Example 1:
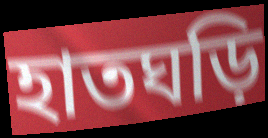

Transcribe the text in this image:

হাতঘড়ি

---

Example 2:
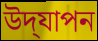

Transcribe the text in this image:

উদ্‌যাপন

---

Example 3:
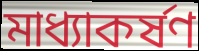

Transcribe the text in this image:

মাধ্যাকৰ্ষণ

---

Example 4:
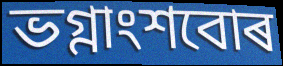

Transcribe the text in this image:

ভগ্নাংশবোৰ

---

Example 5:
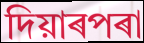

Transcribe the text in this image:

দিয়াৰপৰা